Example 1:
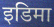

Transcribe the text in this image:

इडिमा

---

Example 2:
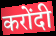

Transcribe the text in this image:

करोंदी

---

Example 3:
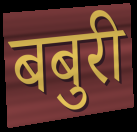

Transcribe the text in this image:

बबुरी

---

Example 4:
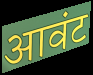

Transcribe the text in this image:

आवंट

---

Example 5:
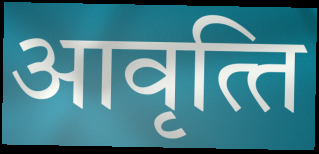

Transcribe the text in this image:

आवृत्‍ति